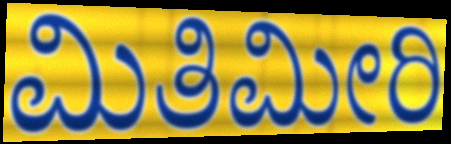
ಮಿತಿಮೀರಿ